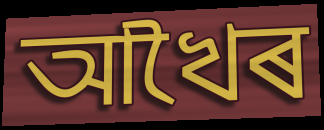
আখৈৰ